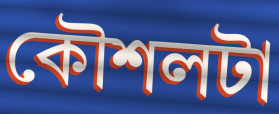
কৌশলটা